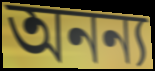
অনন্য